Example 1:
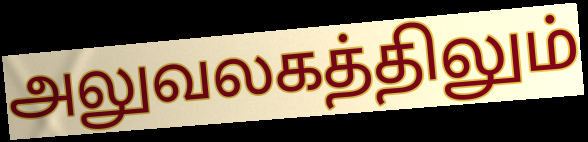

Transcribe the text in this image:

அலுவலகத்திலும்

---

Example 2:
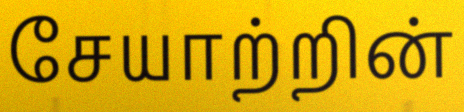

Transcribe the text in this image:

சேயாற்றின்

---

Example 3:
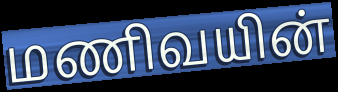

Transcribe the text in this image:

மணிவயின்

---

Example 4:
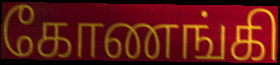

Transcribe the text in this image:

கோணங்கி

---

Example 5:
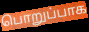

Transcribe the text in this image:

பொறுப்பாக